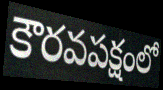
కౌరవపక్షంలో